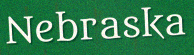
Nebraska